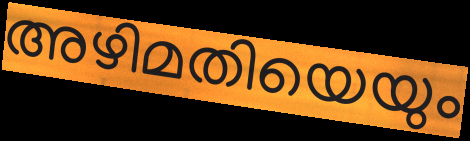
അഴിമതിയെയും